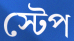
স্টেপ